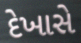
દેખાસે